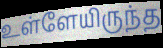
உள்ளேயிருந்த